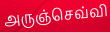
அருஞ்செவ்வி